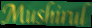
Mushirul